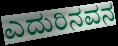
ಎದುರಿನವನ